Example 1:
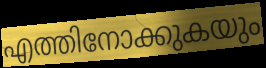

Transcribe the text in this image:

എത്തിനോക്കുകയും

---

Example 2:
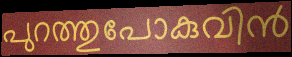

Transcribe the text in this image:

പുറത്തുപോകുവിൻ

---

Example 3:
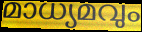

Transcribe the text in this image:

മാധ്യമവും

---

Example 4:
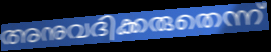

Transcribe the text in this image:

അനുവദിക്കരുതെന്ന്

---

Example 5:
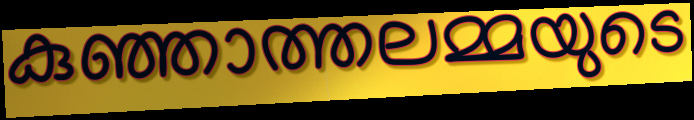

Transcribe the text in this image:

കുഞ്ഞാത്തലമ്മയുടെ